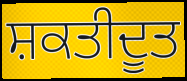
ਸ਼ਕਤੀਦੂਤ